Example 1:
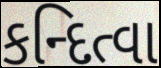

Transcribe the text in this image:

કન્દિત્વા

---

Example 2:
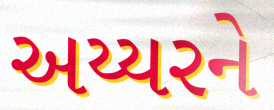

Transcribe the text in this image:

અય્યરને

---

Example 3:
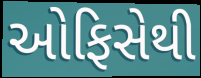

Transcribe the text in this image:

ઓફિસેથી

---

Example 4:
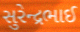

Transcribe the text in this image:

સુરેન્દ્રભાઈ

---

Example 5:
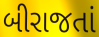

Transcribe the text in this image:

બીરાજતાં